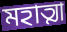
মহাত্মা